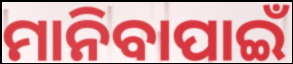
ମାନିବାପାଇଁ